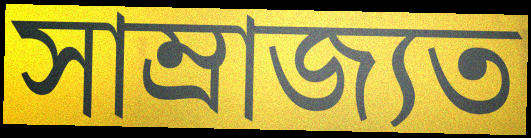
সাম্ৰাজ্যত